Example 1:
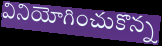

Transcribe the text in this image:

వినియోగించుకొన్న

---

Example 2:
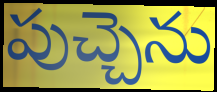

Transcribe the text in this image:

పుచ్చెను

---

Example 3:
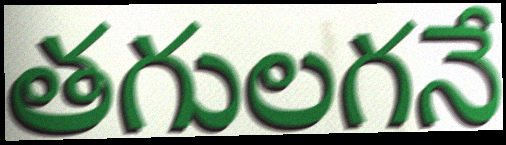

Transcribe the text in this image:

తగులగనే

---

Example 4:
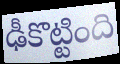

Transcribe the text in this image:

ఢీకొట్టింది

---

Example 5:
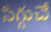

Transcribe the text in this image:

సిగ్గుచే